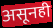
असूनही